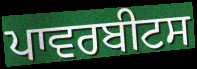
ਪਾਵਰਬੀਟਸ